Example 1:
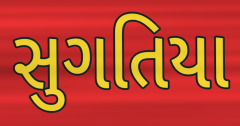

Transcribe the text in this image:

સુગતિયા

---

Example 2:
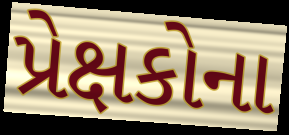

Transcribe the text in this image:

પ્રેક્ષકોના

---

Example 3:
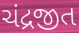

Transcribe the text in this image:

ચંદ્રજીત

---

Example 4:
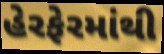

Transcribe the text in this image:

હેરફેરમાંથી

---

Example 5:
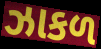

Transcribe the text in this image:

ઝાકળ